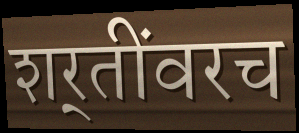
शर्तींवरच